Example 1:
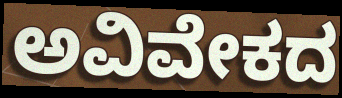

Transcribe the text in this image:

ಅವಿವೇಕದ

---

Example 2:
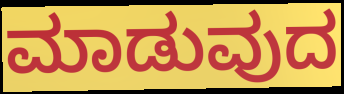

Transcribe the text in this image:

ಮಾಡುವುದ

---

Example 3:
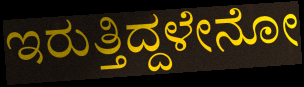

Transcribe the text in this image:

ಇರುತ್ತಿದ್ದಳೇನೋ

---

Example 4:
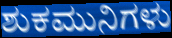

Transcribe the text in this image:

ಶುಕಮುನಿಗಳು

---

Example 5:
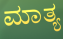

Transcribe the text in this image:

ಮಾತ್ಯ